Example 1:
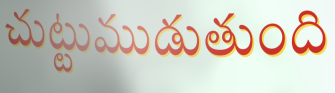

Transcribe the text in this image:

చుట్టుముడుతుంది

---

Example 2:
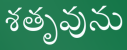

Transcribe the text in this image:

శతృవును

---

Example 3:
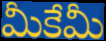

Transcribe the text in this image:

మీకేమీ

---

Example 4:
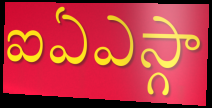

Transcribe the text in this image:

ఐఏఎస్గా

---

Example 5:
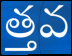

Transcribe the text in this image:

త్తవ